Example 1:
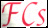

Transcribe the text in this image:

FCs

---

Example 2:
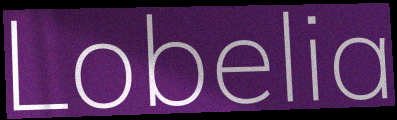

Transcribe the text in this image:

Lobelia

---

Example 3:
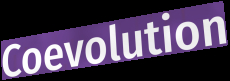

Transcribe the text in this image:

Coevolution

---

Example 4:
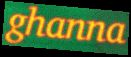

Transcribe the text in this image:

ghanna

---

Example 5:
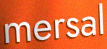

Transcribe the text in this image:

mersal